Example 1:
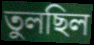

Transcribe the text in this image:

তুলছিল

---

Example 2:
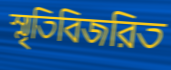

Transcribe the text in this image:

স্মৃতিবিজরিত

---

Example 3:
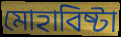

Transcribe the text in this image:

মোহাবিষ্টা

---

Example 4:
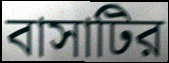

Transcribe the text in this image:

বাসাটির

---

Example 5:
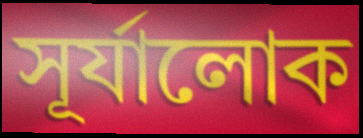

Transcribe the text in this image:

সূর্যালোক